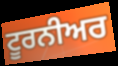
ਟੂਰਨੀਅਰ